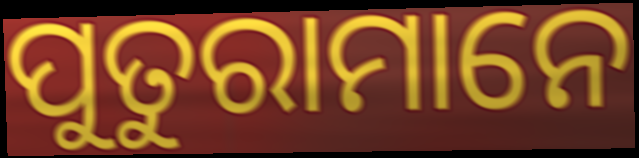
ପୁତୁରାମାନେ